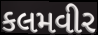
કલમવીર